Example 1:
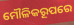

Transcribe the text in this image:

ମୌଳିକରୂପରେ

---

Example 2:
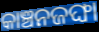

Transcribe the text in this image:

କାଞ୍ଚନଜଙ୍ଘା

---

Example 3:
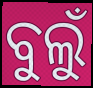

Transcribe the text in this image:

ବୁଲୁଁ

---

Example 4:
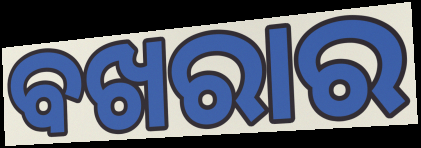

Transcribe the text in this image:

ବଖରାର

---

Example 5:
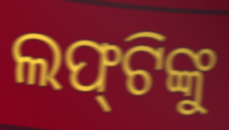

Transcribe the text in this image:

ଲଫ୍‌ଟିଙ୍କୁ